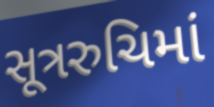
સૂત્રરુચિમાં